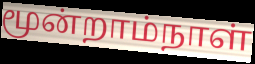
மூன்றாம்நாள்